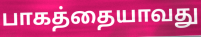
பாகத்தையாவது